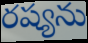
రష్యను